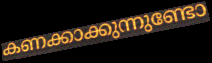
കണക്കാക്കുന്നുണ്ടോ